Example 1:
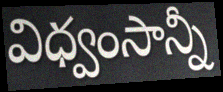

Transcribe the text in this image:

విధ్వంసాన్నీ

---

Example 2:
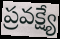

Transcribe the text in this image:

ప్రవక్ష్యే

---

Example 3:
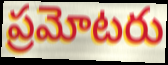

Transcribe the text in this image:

ప్రమోటరు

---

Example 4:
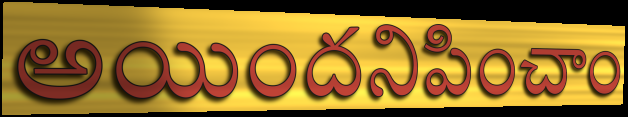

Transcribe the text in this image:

అయిందనిపించాం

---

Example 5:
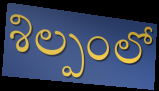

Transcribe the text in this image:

శిల్పంలో